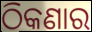
ଠିକଣାର